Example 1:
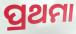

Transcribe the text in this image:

ପ୍ରଥମା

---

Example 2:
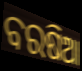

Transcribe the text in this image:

ବରଷିଆ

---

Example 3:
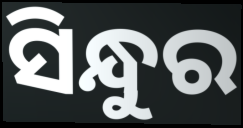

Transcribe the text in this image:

ସିନ୍ଧୁର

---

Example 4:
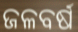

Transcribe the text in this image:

ଜଳବର୍ଷ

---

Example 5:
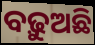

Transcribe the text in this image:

ବଢ଼ୁଅଛି